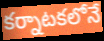
కర్నాటకలోనే